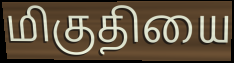
மிகுதியை